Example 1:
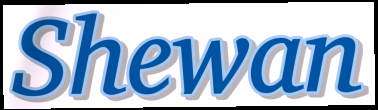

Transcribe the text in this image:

Shewan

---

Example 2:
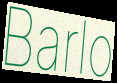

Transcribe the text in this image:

Barlo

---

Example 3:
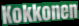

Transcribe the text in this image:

Kokkonen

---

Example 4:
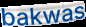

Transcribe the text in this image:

bakwas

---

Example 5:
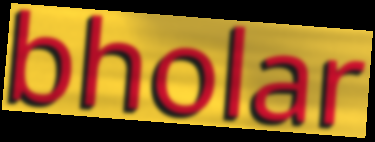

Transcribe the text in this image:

bholar